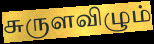
சுருளவிழும்